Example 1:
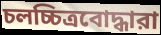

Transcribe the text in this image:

চলচ্চিত্রবোদ্ধারা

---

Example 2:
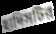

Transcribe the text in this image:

হাদিসটির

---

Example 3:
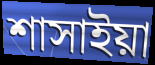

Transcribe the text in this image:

শাসাইয়া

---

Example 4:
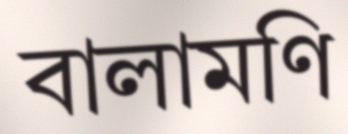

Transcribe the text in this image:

বালামণি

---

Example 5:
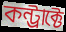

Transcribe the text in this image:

কন্ট্রাক্টে